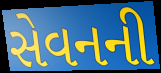
સેવનની